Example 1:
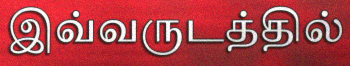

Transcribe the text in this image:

இவ்வருடத்தில்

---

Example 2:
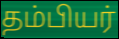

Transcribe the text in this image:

தம்பியர்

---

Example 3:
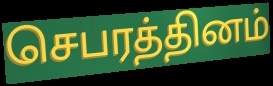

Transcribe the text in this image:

செபரத்தினம்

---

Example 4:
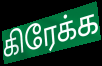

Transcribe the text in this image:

கிரேக்க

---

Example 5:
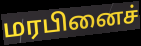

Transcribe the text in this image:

மரபினைச்